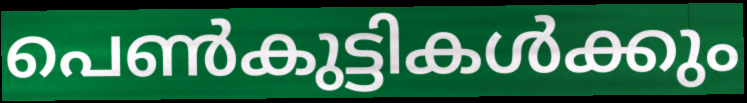
പെൺകുട്ടികൾക്കും